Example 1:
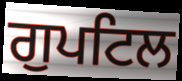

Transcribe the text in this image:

ਗੁਪਟਿਲ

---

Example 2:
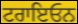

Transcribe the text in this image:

ਟਰਾਇਓਨ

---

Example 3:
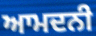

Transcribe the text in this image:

ਆਮਦਨੀ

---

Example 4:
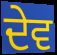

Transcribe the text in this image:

ਦੇਵ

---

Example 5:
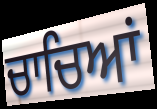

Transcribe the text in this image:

ਚਾਚਿਆਂ